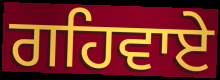
ਗਹਿਵਾਏ